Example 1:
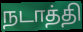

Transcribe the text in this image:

நடாத்தி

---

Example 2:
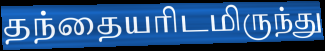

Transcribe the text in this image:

தந்தையரிடமிருந்து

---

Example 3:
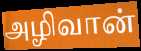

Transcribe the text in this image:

அழிவான்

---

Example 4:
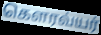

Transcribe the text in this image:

கௌரவ்யர்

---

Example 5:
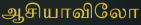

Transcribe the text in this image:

ஆசியாவிலோ